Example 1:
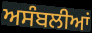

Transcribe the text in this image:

ਅਸੰਬਲੀਆਂ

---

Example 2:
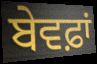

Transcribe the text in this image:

ਬੇਵਫ਼ਾਂ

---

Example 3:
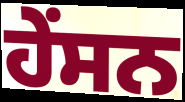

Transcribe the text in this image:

ਹੇਂਸਨ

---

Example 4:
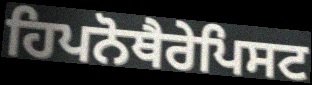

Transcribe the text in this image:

ਹਿਪਨੋਥੈਰੇਪਿਸਟ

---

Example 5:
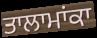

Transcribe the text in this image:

ਤਾਲਾਮਾਂਕਾ